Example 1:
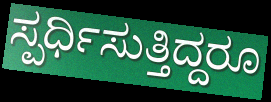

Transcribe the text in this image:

ಸ್ಪರ್ಧಿಸುತ್ತಿದ್ದರೂ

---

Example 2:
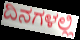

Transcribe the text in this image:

ದಿನಗಳಲ್ಲಿ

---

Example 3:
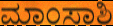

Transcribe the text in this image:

ಮಾಂಸಾಶಿ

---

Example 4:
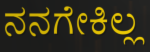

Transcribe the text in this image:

ನನಗೇಕಿಲ್ಲ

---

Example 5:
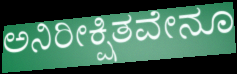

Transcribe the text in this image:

ಅನಿರೀಕ್ಷಿತವೇನೂ